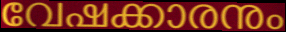
വേഷക്കാരനും